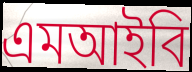
এমআইবি